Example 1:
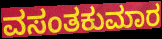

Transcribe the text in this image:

ವಸಂತಕುಮಾರ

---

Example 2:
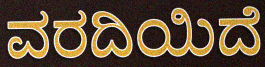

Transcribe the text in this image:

ವರದಿಯಿದೆ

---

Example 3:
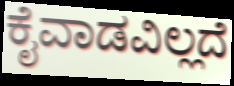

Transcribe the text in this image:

ಕೈವಾಡವಿಲ್ಲದೆ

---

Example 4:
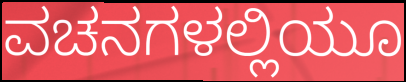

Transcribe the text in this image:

ವಚನಗಳಲ್ಲಿಯೂ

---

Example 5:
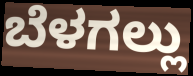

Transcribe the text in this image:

ಬೆಳಗಲ್ಲು